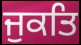
ਜੁਕਤਿ